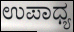
ಉಪಾಧ್ಯ